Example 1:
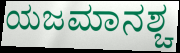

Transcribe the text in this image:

ಯಜಮಾನಶ್ಚ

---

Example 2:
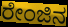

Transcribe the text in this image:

ರೇಂಜಿನ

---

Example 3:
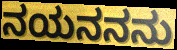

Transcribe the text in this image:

ನಯನನನು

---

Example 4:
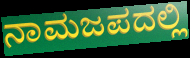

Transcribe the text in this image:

ನಾಮಜಪದಲ್ಲಿ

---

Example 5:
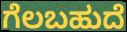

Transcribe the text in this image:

ಗೆಲಬಹುದೆ